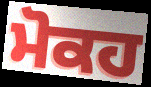
ਮੋਕਹ